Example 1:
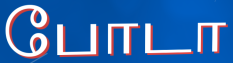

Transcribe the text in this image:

போடா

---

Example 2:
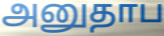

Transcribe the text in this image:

அனுதாப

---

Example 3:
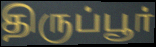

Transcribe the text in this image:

திருப்பூர்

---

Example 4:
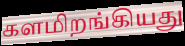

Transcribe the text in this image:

களமிறங்கியது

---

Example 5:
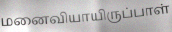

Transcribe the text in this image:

மனைவியாயிருப்பாள்